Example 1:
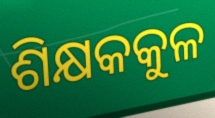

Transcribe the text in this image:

ଶିକ୍ଷକକୁଳ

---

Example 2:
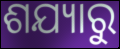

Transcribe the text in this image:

ଶଯ୍ୟାରୁ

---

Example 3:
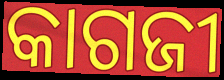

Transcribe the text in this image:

କାଗଜୀ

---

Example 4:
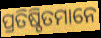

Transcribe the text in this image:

ପ୍ରତିଷ୍ଠିତମାନେ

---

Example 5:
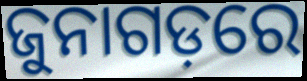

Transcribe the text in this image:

ଜୁନାଗଡ଼ରେ